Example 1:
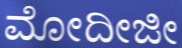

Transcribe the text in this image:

ಮೋದೀಜೀ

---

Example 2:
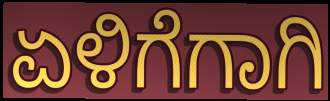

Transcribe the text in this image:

ಏಳಿಗೆಗಾಗಿ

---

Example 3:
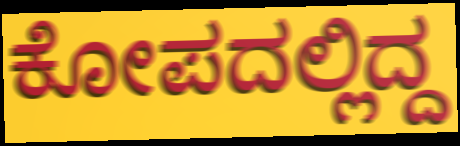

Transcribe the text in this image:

ಕೋಪದಲ್ಲಿದ್ದ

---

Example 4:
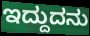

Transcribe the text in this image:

ಇದ್ದುದನು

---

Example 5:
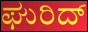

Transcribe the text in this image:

ಘುರಿದ್